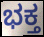
ಭಕ್ತ